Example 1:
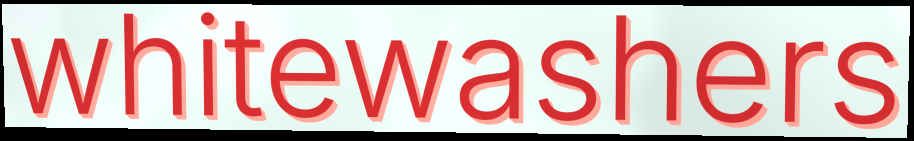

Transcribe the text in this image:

whitewashers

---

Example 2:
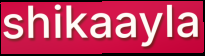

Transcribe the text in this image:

shikaayla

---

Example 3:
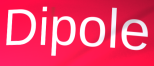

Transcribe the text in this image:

Dipole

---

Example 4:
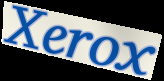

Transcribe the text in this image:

Xerox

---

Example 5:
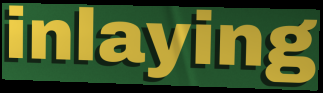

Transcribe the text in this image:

inlaying